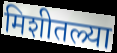
मिशीतल्या